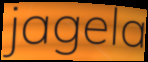
jagela